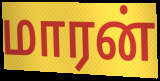
மாரன்